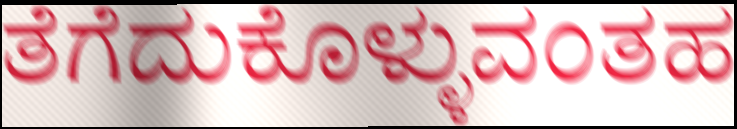
ತೆಗೆದುಕೊಳ್ಳುವಂತಹ